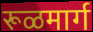
रूळमार्ग